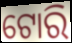
ଟୋରି